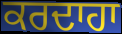
ਕਰਦਾਹਾ